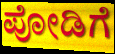
ಪೋಡಿಗೆ